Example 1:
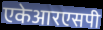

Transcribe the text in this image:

एकेआरएसपी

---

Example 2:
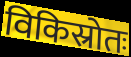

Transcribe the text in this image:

विकिस्रोतः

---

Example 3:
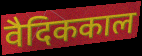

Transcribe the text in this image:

वैदिककाल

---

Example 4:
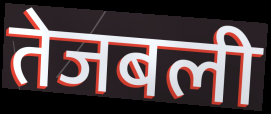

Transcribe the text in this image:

तेजबली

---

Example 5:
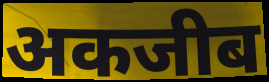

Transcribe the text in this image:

अकजीब